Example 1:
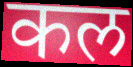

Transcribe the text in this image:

कल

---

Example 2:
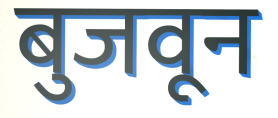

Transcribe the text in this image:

बुजवून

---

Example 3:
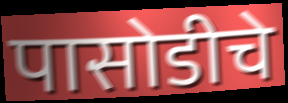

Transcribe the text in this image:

पासोडीचे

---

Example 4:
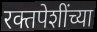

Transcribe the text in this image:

रक्तपेशींच्या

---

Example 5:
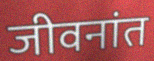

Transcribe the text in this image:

जीवनांत